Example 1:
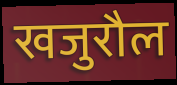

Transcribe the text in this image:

खजुरौल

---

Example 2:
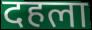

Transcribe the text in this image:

दहला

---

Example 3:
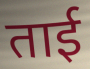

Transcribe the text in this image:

ताई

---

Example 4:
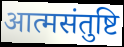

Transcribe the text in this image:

आत्मसंतुष्टि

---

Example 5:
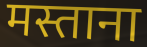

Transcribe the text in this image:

मस्ताना